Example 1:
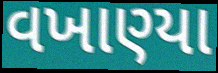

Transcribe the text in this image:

વખાણ્યા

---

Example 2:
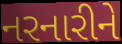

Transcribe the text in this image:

નરનારીને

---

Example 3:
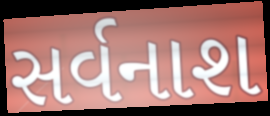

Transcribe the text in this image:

સર્વનાશ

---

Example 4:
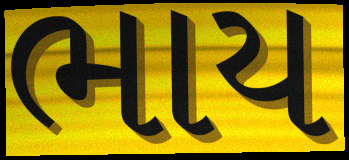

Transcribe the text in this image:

ભાય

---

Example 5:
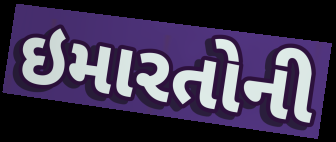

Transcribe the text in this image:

ઇમારતોની